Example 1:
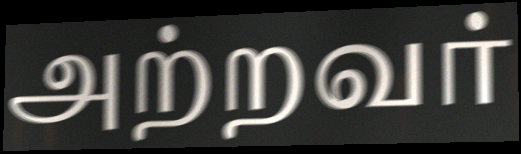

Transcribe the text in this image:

அற்றவர்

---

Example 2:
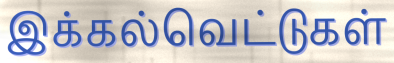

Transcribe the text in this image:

இக்கல்வெட்டுகள்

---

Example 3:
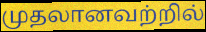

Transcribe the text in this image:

முதலானவற்றில்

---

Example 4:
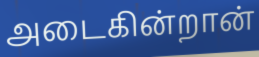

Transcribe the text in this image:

அடைகின்றான்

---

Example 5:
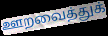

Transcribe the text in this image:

ஊறவைத்துக்